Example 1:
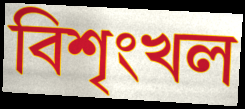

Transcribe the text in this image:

বিশৃংখল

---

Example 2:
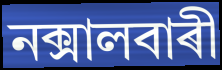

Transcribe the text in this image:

নক্সালবাৰী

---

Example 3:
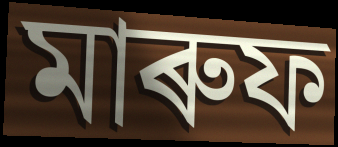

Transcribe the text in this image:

মাৰুফ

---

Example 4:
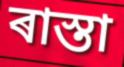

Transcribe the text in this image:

ৰাস্তা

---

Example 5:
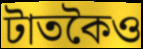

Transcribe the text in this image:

টাতকৈও